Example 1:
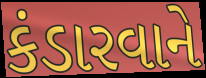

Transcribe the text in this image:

કંડારવાને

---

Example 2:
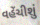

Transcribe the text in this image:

વહેંચીશું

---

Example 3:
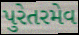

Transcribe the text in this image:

પુરેતરમેવ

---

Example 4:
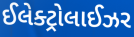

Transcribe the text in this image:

ઈલેક્ટ્રોલાઈઝર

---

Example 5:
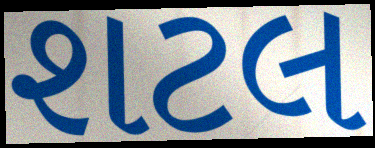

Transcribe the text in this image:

શટલ